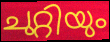
ചുറ്റിയും